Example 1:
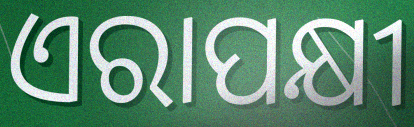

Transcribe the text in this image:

ଏରାପକ୍ଷୀ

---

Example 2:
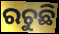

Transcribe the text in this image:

ରଚୁଛି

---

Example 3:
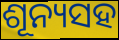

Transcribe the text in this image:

ଶୂନ୍ୟସହ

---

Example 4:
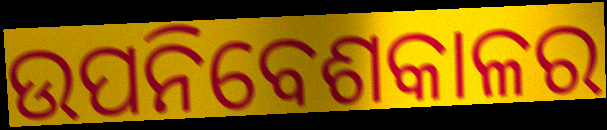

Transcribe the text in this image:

ଉପନିବେଶକାଳର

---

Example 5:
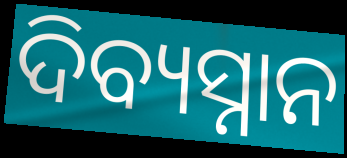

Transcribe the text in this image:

ଦିବ୍ୟସ୍ନାନ